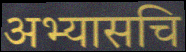
अभ्यासचि